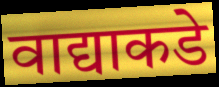
वाद्याकडे